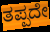
ತಪ್ಪದೇ